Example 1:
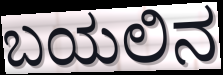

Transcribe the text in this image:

ಬಯಲಿನ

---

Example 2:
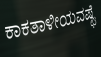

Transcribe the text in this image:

ಕಾಕತಾಳೀಯವಷ್ಟೆ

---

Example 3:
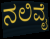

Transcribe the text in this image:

ನಲಿವೈ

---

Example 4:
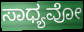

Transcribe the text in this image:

ಸಾಧ್ಯವೋ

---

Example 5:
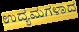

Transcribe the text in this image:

ಉದ್ಯಮಗಳಾದ